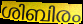
ശിബിരം